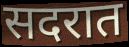
सदरात